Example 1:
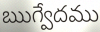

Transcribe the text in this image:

ఋగ్వేదము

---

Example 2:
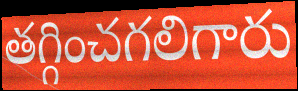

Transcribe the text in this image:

తగ్గించగలిగారు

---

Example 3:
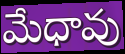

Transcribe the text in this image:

మేధావు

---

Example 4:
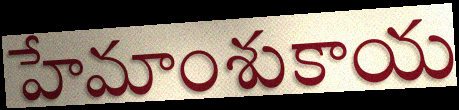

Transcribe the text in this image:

హేమాంశుకాయ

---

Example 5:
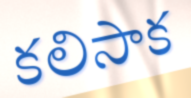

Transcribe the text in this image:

కలిసాక